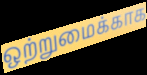
ஒற்றுமைக்காக